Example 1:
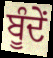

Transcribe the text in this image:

ਬੂੰਦੇਂ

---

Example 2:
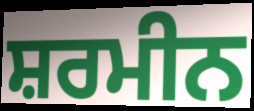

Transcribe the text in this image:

ਸ਼ਰਮੀਨ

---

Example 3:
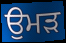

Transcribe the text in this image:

ਉਮੜ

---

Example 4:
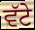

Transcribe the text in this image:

ਵੱਟੇ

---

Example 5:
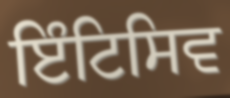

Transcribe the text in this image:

ਇੰਟਿਸਿਵ